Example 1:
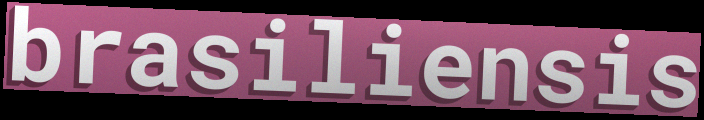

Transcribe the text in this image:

brasiliensis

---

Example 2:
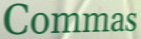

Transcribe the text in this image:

Commas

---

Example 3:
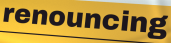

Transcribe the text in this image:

renouncing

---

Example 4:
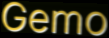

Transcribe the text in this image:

Gemo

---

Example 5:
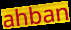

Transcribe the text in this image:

ahban